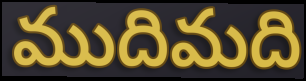
ముదిమది